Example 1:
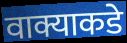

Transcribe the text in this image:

वाक्याकडे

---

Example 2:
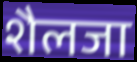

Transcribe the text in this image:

शैलजा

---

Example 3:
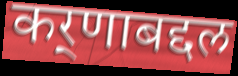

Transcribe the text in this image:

कर्णाबद्दल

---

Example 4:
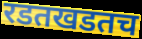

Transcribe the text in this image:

रडतखडतच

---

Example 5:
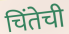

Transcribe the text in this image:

चिंतेची